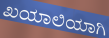
ಖಯಾಲಿಯಾಗಿ